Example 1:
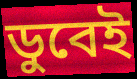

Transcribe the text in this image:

ডুবেই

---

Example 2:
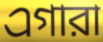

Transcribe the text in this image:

এগারা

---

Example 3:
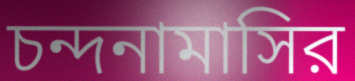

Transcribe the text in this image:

চন্দনামাসির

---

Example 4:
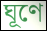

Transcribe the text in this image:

ঘূণে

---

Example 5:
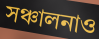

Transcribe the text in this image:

সঞ্চালনাও